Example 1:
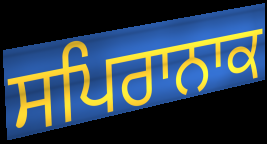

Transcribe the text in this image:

ਸਪਿਰਾਨਾਕ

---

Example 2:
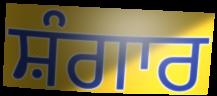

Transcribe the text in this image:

ਸ਼ੰਗਾਰ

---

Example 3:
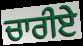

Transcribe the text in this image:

ਚਾਰੀਏ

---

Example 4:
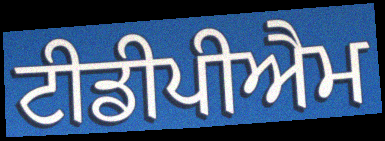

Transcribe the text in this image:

ਟੀਡੀਪੀਐਮ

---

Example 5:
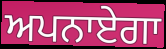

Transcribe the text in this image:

ਅਪਨਾਏਗਾ